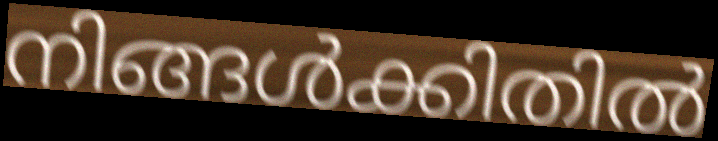
നിങ്ങൾക്കിതിൽ